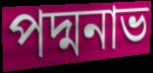
পদ্মনাভ